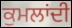
ਕੁਮਲਾਂਦੀ